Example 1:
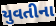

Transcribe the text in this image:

યુવતીના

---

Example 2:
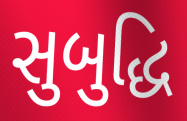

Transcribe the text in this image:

સુબુદ્ધિ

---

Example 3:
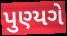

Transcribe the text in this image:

પુણ્યગે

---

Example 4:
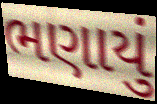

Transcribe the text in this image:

ભણાયું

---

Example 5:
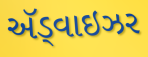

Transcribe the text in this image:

ઍડ્વાઇઝર